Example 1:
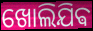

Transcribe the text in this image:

ଖୋଲିଯିଵ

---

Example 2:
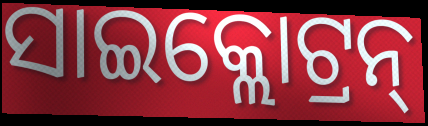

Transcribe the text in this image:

ସାଇକ୍ଲୋଟ୍ରନ୍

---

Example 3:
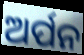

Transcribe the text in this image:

ଅର୍ପନ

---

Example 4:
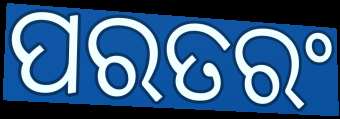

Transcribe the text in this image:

ପରତରଂ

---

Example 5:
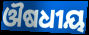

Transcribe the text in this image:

ଔଷଧୀୟ